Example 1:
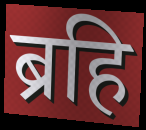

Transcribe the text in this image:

ब्रहि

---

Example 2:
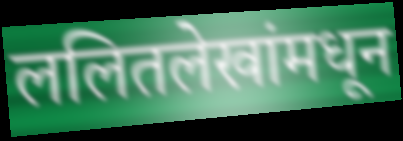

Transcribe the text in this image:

ललितलेखांमधून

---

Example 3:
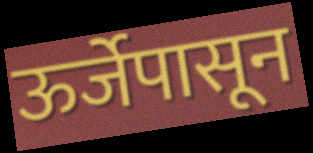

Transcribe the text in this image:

ऊर्जेपासून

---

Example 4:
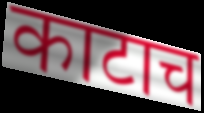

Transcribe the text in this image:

काटाच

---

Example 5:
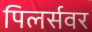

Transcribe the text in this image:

पिलर्सवर